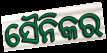
ସୈନିକର